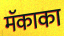
मॅकाका